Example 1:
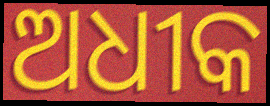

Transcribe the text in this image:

ଅଧୀକ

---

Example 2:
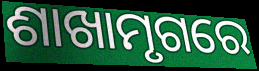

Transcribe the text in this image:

ଶାଖାମୃଗରେ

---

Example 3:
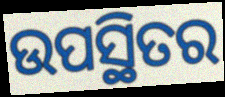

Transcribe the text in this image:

ଉପସ୍ଥିତର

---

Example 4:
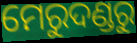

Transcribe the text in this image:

ମେରୁଦଣ୍ଡରୁ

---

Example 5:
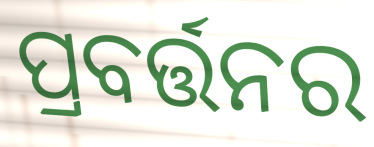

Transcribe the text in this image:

ପ୍ରବର୍ତ୍ତନର